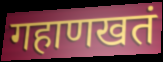
गहाणखतं